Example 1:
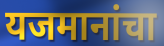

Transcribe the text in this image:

यजमानांचा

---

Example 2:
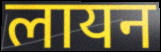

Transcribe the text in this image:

लायन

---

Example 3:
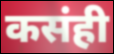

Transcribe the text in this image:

कसंही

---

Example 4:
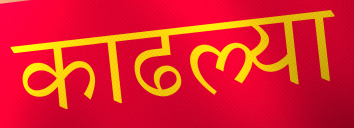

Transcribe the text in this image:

काढल्या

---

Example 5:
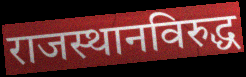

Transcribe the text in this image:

राजस्थानविरुद्ध